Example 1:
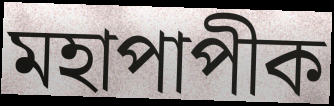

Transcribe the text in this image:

মহাপাপীক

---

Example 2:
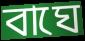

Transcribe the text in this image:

বাঘে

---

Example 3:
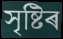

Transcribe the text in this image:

সৃষ্টিৰ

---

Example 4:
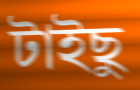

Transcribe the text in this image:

টাইছু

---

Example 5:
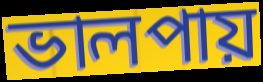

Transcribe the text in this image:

ভালপায়